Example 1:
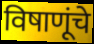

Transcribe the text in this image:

विषाणूंचे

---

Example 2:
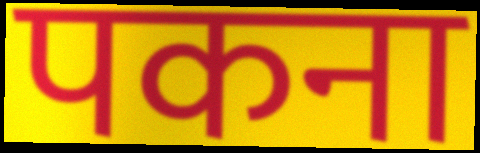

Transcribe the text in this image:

पकना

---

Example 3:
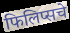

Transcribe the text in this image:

फिलिप्सचे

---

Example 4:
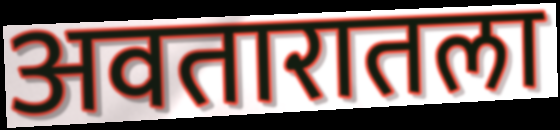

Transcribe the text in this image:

अवतारातला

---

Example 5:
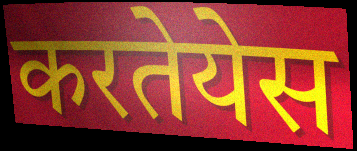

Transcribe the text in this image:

करतेयेस